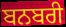
ਬਨਬਰੀ